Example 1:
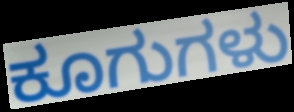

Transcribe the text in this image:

ಕೂಗುಗಳು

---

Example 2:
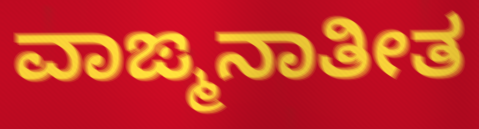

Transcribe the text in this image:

ವಾಙ್ಮನಾತೀತ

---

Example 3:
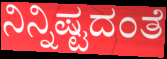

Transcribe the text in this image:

ನಿನ್ನಿಷ್ಟದಂತೆ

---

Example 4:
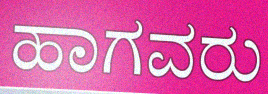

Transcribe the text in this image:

ಹಾಗವರು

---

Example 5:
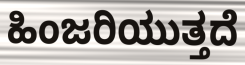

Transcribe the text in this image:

ಹಿಂಜರಿಯುತ್ತದೆ